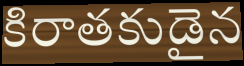
కిరాతకుడైన